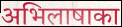
अभिलाषाका